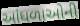
આંધળાઓની